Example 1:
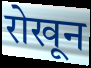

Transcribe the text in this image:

रोखून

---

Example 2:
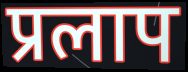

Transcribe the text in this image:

प्रलाप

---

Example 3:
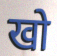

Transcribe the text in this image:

खो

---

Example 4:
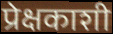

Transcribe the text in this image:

प्रेक्षकाशी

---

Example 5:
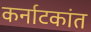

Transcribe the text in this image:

कर्नाटकांत